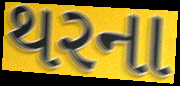
થરના